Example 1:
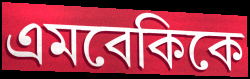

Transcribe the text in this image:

এমবেকিকে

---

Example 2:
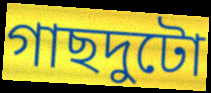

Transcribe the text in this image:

গাছদুটো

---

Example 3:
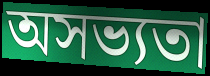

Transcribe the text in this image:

অসভ্যতা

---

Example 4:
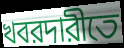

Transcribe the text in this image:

খবরদারীতে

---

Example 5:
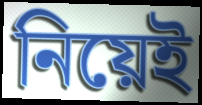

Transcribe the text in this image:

নিয়েই